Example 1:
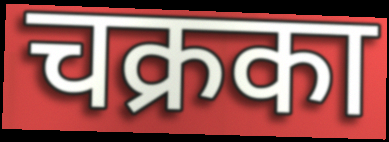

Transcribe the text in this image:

चक्रका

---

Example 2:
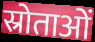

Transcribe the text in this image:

स्रोताओं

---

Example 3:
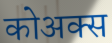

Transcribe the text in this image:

कोअक्स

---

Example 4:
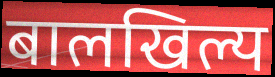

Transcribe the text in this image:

बालखिल्य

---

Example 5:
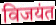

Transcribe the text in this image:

विजयंत